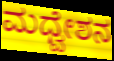
ಮಧ್ವೇಶನ